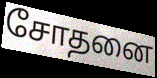
சோதனை